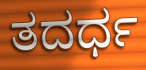
ತದರ್ಧ